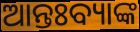
ଆନ୍ତଃବ୍ୟାଙ୍କ